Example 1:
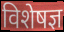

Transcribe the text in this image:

विशेषज्ञ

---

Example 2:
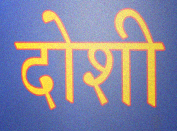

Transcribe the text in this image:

दोशी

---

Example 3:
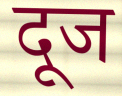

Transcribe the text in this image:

दूज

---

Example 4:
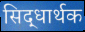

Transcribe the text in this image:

सिद्धार्थक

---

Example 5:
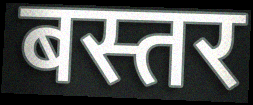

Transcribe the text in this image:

बस्तर